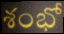
శంభో